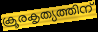
ക്രൂരകൃത്യത്തിന്